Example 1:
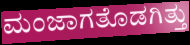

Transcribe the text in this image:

ಮಂಜಾಗತೊಡಗಿತ್ತು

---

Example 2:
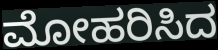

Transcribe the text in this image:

ಮೋಹರಿಸಿದ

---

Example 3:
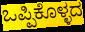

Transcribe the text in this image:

ಒಪ್ಪಿಕೊಳ್ಳದ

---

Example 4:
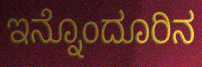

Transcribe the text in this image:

ಇನ್ನೊಂದೂರಿನ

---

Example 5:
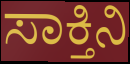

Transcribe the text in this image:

ಸಾಕ್ತಿನಿ